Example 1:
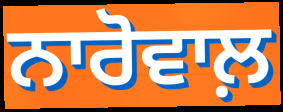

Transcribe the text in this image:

ਨਾਰੋਵਾਲ਼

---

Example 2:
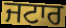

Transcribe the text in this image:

ਜਟਾਰ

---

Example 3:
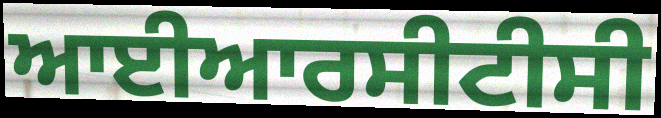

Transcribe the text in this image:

ਆਈਆਰਸੀਟੀਸੀ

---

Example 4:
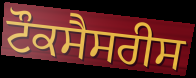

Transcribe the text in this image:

ਟੌਕਸੈਸਰੀਸ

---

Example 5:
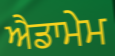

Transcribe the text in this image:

ਐਡਾਮੇਮ